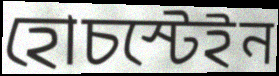
হোচস্টেইন